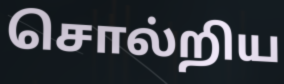
சொல்றிய